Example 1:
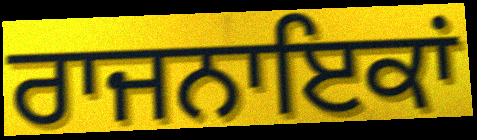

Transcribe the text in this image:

ਰਾਜਨਾਇਕਾਂ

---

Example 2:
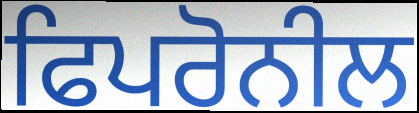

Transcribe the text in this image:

ਫਿਪਰੋਨੀਲ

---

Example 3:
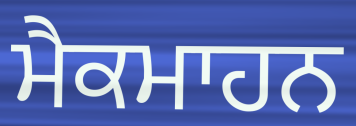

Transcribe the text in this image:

ਮੈਕਮਾਹਨ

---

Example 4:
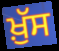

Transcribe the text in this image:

ਖ਼ੁੱਸ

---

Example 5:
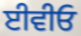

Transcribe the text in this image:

ਈਵੀਓ